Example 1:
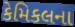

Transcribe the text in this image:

કેમિકલના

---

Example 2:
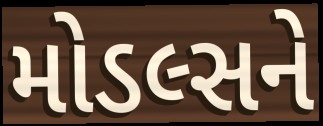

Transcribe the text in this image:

મોડલ્સને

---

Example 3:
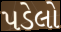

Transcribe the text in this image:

પડેલો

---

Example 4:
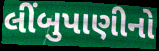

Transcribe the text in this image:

લીંબુપાણીનો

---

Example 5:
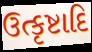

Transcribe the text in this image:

ઉત્કૃષ્ટાદિ